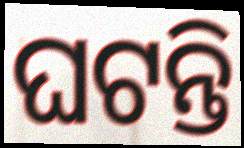
ଘଟନ୍ତି